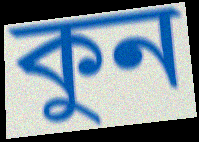
কুন